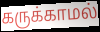
கருக்காமல்